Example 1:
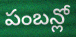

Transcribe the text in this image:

పంబన్లో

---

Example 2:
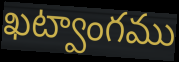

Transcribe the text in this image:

ఖట్వాంగము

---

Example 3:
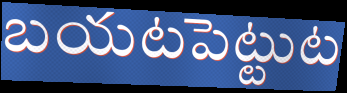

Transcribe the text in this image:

బయటపెట్టుట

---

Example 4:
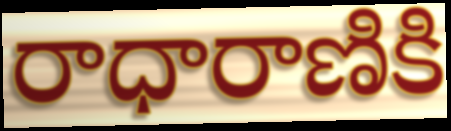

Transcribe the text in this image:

రాధారాణికి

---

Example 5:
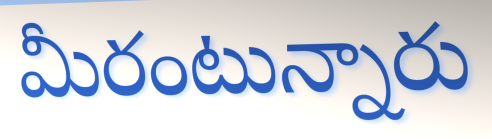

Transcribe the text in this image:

మీరంటున్నారు